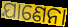
ଯାଣେନା